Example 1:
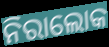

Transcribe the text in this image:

ନିରାଲୋକ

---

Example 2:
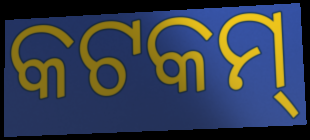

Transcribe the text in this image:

କଟକମ୍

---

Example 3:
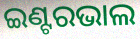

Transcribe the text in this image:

ଇଣ୍ଟରଭାଲ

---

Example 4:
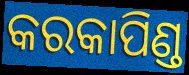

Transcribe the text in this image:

କରକାପିଣ୍ଡ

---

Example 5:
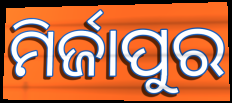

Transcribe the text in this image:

ମିର୍ଜାପୁର